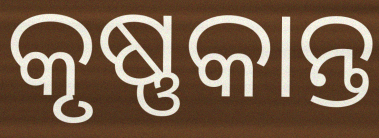
କୃଷ୍ଣକାନ୍ତ